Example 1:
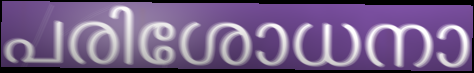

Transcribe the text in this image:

പരിശോധനാ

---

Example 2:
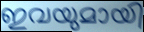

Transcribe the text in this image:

ഇവയുമായി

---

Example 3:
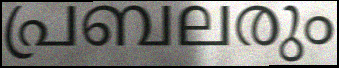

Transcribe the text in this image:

പ്രബലരും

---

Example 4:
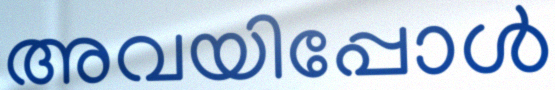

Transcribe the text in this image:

അവയിപ്പോൾ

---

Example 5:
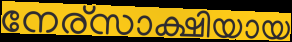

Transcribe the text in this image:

നേര്സാക്ഷിയായ